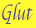
Glut